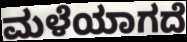
ಮಳೆಯಾಗದೆ